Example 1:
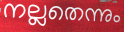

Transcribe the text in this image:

നല്ലതെന്നും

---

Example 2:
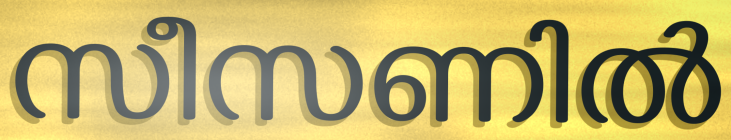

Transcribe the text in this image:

സീസണിൽ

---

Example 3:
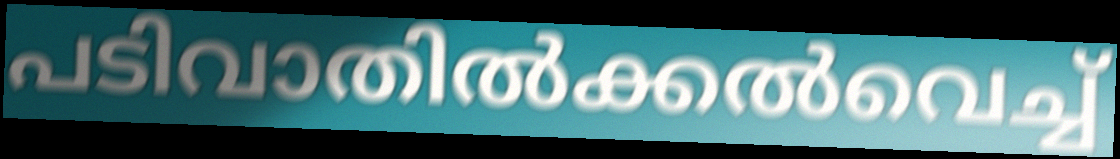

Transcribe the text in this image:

പടിവാതിൽക്കൽവെച്ച്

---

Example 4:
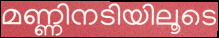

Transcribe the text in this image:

മണ്ണിനടിയിലൂടെ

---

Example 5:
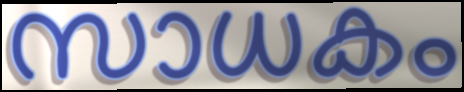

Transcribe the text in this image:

സാധകം